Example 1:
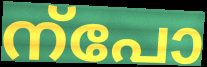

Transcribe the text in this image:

ന്പോ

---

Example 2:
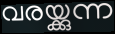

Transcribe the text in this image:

വരയ്ക്കുന്ന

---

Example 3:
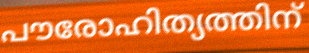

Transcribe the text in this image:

പൗരോഹിത്യത്തിന്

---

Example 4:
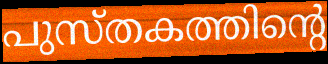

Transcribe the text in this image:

പുസ്തകത്തിന്റെ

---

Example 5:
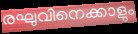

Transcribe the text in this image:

രഘുവിനെക്കാളും